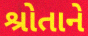
શ્રોતાને